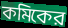
কমিকের